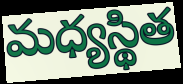
మధ్యస్థిత